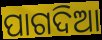
ପାଗଦିଆ